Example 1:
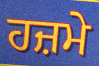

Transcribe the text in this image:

ਹਜ਼ਮੇ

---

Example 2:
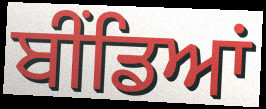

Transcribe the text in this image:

ਬੀਂਡਿਆਂ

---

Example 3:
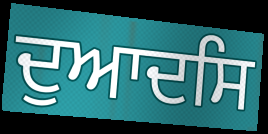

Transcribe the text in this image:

ਦੁਆਦਸਿ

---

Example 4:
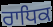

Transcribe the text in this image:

ਰਾਧਿਕ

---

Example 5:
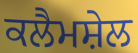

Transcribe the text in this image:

ਕਲੈਮਸ਼ੇਲ